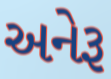
અનેરૂ